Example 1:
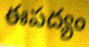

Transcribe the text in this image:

ఈపద్యం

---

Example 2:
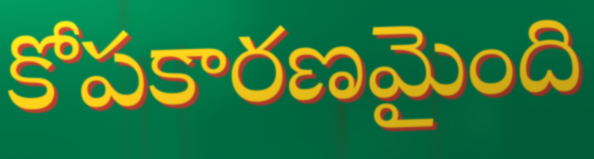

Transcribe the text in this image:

కోపకారణమైంది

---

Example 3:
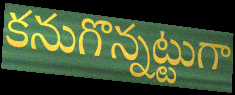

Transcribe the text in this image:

కనుగొన్నట్టుగా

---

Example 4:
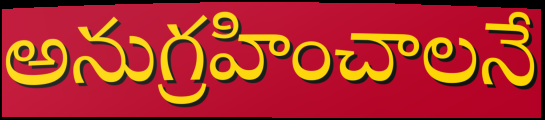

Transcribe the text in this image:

అనుగ్రహించాలనే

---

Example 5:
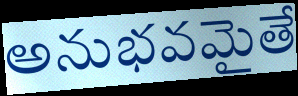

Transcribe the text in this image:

అనుభవమైతే